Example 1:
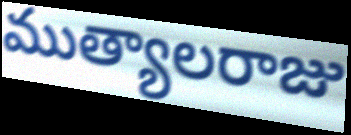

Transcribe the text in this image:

ముత్యాలరాజు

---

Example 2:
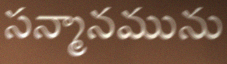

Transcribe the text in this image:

సన్మానమును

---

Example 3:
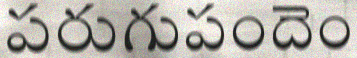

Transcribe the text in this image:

పరుగుపందెం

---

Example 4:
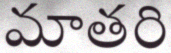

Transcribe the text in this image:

మాతరి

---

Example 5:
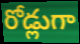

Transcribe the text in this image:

రోడ్లుగా